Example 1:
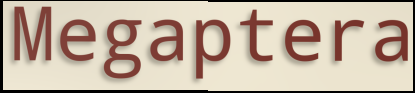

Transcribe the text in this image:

Megaptera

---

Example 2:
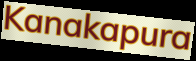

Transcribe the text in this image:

Kanakapura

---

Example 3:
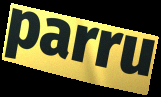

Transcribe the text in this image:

parru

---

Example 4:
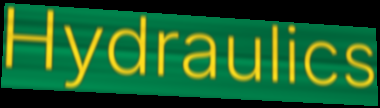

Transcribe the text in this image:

Hydraulics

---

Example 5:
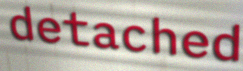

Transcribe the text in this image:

detached